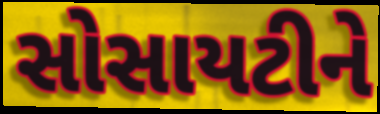
સોસાયટીને